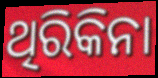
ଥିରିକିନା